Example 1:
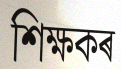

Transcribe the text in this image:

শিক্ষকৰ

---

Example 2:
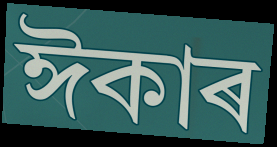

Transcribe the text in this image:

ঈকাৰ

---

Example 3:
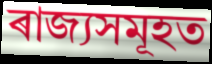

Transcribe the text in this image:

ৰাজ্যসমূহত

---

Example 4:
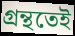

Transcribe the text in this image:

গ্ৰন্থতেই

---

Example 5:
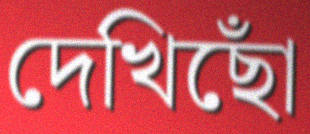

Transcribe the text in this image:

দেখিছোঁ